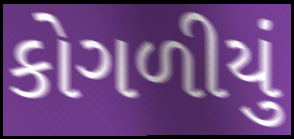
કોગળીયું